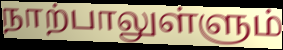
நாற்பாலுள்ளும்